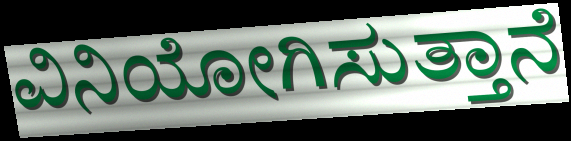
ವಿನಿಯೋಗಿಸುತ್ತಾನೆ